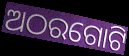
ଅଠରଗୋଟି